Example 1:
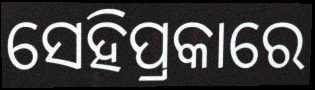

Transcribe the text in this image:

ସେହିପ୍ରକାରେ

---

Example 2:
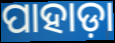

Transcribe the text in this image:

ପାହାଡ଼ା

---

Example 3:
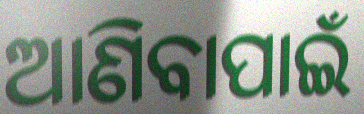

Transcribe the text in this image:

ଆଣିବାପାଇଁ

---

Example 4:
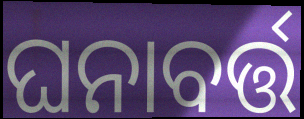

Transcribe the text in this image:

ଘନାବର୍ତ୍ତ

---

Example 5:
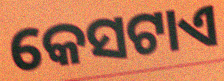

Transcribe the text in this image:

କେସଟାଏ